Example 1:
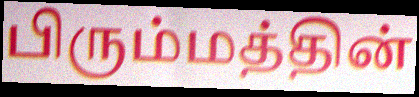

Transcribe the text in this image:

பிரும்மத்தின்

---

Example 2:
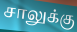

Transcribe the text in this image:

சாலுக்கு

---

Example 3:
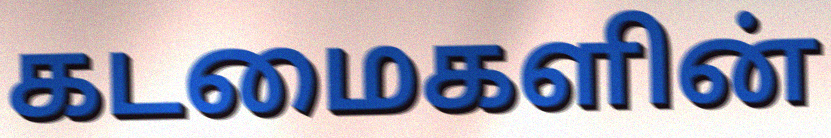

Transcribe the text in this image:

கடமைகளின்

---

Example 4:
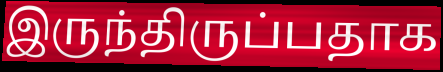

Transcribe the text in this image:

இருந்திருப்பதாக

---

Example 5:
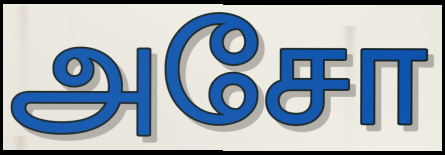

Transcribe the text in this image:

அசோ